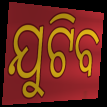
ଯୁଟିବ